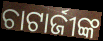
ଚାଟାର୍ଜୀଙ୍କ